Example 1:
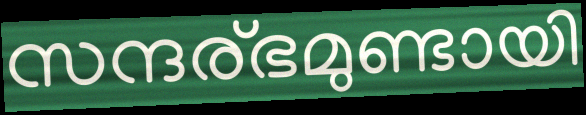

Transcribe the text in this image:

സന്ദര്ഭമുണ്ടായി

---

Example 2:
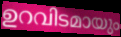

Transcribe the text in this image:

ഉറവിടമായും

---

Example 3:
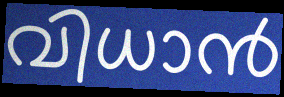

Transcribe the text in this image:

വിധാൻ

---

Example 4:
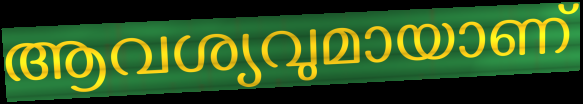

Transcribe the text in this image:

ആവശ്യവുമായാണ്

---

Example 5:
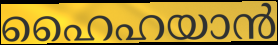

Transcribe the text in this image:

ഹൈഹയാൻ